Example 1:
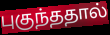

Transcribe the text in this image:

புகுந்ததால்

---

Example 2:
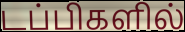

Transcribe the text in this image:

டப்பிகளில்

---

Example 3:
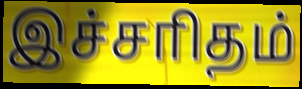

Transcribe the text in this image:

இச்சரிதம்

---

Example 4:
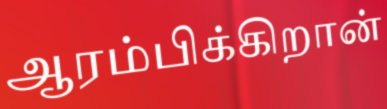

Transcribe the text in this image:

ஆரம்பிக்கிறான்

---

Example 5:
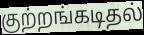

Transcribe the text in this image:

குற்றங்கடிதல்